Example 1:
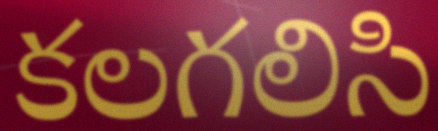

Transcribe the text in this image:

కలగలిసి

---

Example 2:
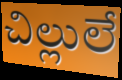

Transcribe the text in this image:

చిల్లులే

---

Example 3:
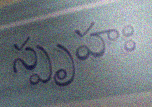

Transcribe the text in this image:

స్పృహః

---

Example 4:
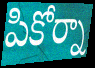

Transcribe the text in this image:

పికోర్నా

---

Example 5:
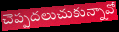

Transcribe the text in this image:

చెప్పదలుచుకున్నావో